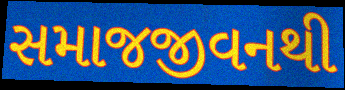
સમાજજીવનથી